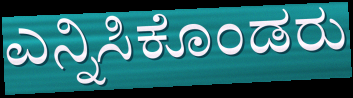
ಎನ್ನಿಸಿಕೊಂಡರು